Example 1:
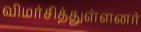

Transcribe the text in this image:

விமர்சித்துள்ளனர்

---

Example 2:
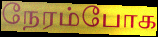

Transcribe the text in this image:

நேரம்போக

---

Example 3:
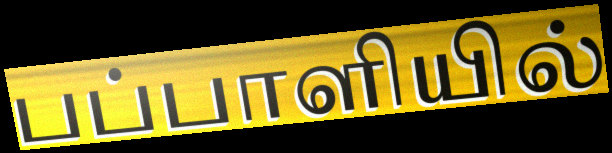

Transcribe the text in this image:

பப்பாளியில்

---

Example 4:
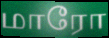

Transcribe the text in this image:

மாரோ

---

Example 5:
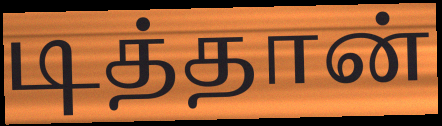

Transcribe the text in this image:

டித்தான்